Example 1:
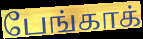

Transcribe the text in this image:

பேங்காக்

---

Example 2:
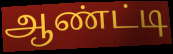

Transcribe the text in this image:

ஆண்ட்டி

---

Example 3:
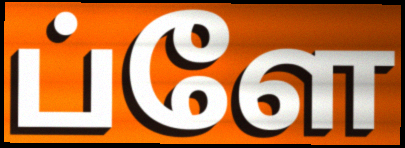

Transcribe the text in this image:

ப்ளே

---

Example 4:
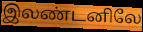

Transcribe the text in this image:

இலண்டனிலே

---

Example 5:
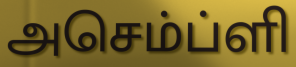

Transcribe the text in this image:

அசெம்ப்ளி